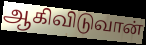
ஆகிவிடுவான்